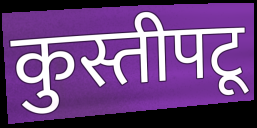
कुस्तीपटू